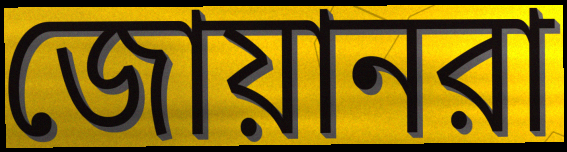
জোয়ানরা